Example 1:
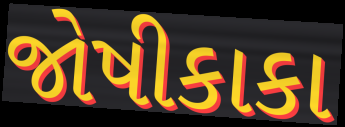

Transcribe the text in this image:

જોષીકાકા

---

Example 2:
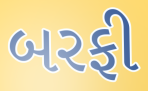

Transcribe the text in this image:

બરફી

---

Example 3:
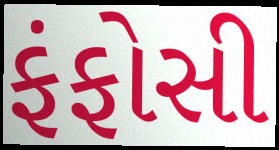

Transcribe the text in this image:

ફંફોસી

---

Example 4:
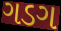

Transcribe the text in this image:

ગડગ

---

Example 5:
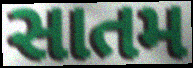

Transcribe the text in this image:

સાતમ